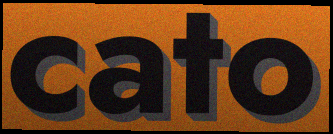
cato